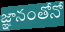
జ్ఞానంతోనో